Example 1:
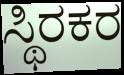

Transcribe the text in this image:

ಸ್ಥಿರಕರ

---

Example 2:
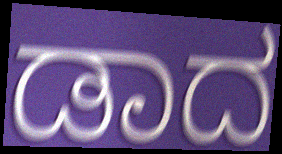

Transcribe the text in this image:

ಡಾದ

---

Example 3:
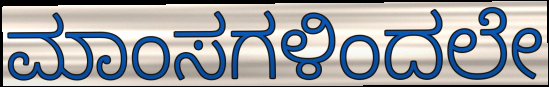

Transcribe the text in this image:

ಮಾಂಸಗಳಿಂದಲೇ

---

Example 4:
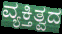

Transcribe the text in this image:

ವ್ಯಕ್ತಿತ್ವದ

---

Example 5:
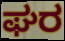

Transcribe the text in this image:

ಘರ